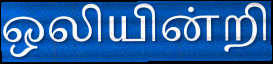
ஒலியின்றி